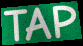
TAP